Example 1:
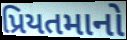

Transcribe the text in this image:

પ્રિયતમાનો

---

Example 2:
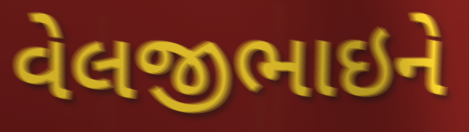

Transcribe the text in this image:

વેલજીભાઇને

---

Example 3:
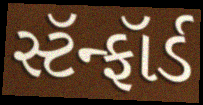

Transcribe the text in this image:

સ્ટૅન્ફૉર્ડ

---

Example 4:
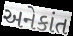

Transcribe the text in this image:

અનેકાંત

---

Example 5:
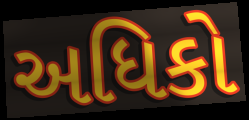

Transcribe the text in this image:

અધિકો